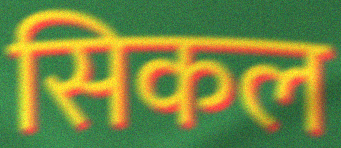
सिकल